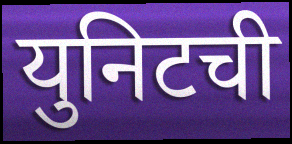
युनिटची